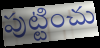
పుట్టించు